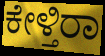
ಕೇಳ್ತಿರಾ